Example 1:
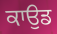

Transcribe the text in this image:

ਕਾਉਡ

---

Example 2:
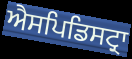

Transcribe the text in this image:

ਐਸਪਿਡਿਸਟ੍ਰਾ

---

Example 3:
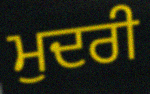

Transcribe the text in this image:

ਮੁਦਰੀ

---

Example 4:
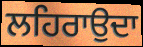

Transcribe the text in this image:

ਲਹਿਰਾਉਦਾ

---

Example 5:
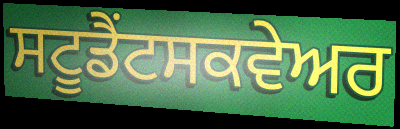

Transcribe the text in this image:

ਸਟੂਡੈਂਟਸਕਵੇਅਰ